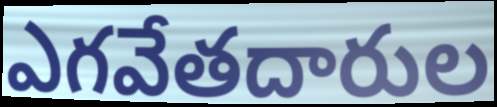
ఎగవేతదారుల